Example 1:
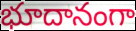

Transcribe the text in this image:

భూదానంగా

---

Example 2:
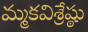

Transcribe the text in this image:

మ్మకవిశ్రేష్ఠు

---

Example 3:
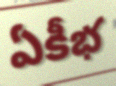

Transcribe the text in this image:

ఏకీభ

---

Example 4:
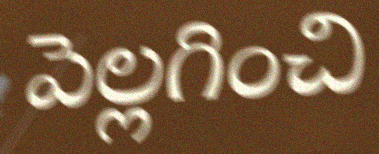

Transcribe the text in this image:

పెల్లగించి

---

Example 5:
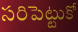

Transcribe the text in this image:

సరిపెట్టుకో